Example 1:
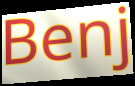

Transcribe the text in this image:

Benj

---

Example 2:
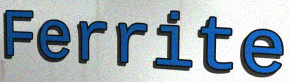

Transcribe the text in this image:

Ferrite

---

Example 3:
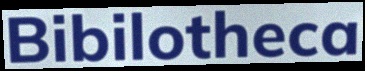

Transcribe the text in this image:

Bibilotheca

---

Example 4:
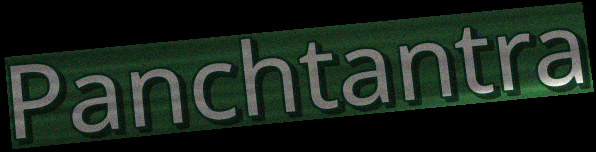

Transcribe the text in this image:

Panchtantra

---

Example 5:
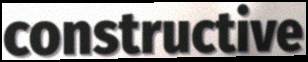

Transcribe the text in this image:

constructive